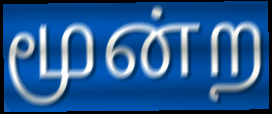
மூன்ற